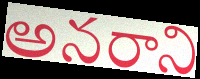
అనరాని